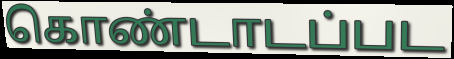
கொண்டாடப்பட